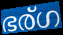
ഭര്ഗ